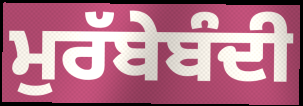
ਮੁਰੱਬੇਬੰਦੀ